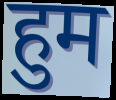
हुम